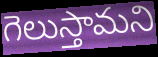
గెలుస్తామని